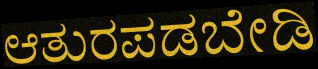
ಆತುರಪಡಬೇಡಿ